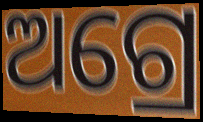
ଅଗ୍ରେ